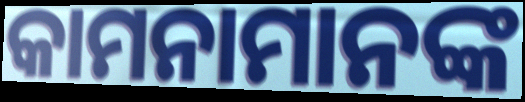
କାମନାମାନଙ୍କ